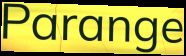
Parange